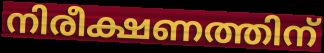
നിരീക്ഷണത്തിന്